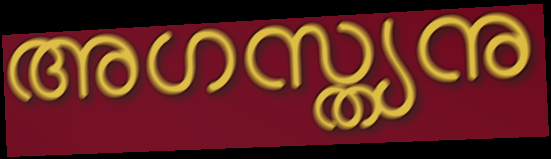
അഗസ്ത്യനു